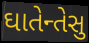
ઘાતેન્તેસુ